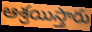
ఆశ్రయిస్తారు